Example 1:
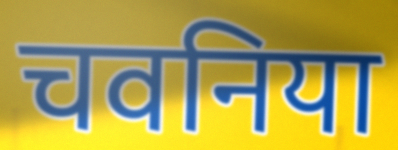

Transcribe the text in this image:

चवनिया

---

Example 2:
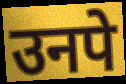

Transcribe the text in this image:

उनपे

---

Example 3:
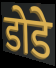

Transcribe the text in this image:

डोडे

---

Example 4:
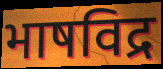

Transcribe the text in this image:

भाषविद्र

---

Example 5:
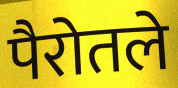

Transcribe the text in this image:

पैरोतले